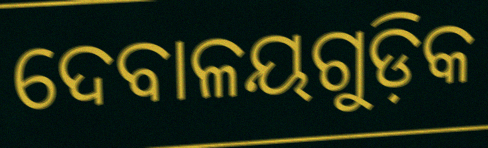
ଦେବାଳୟଗୁଡ଼ିକ